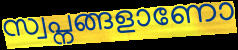
സ്വപ്നങ്ങളാണോ